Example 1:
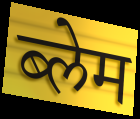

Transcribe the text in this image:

ब्लेम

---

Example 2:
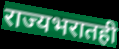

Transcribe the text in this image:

राज्यभरातही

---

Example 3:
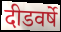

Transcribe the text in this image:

दीडवर्षे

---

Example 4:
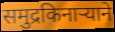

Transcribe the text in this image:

समुद्रकिनाऱ्याने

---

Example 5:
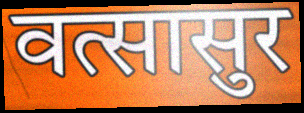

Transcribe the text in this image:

वत्सासुर